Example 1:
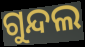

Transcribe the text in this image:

ଗୁନ୍ଦଲ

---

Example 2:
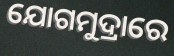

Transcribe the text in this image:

ଯୋଗମୁଦ୍ରାରେ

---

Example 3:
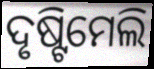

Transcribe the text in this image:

ଦୃଷ୍ଟିମେଲି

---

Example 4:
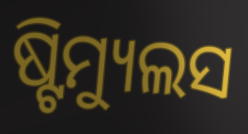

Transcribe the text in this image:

ଷ୍ଟିମ୍ୟୁଲସ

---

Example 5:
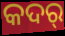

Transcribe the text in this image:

କଦର୍